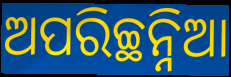
ଅପରିଚ୍ଛନ୍ନିଆ